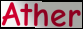
Ather